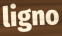
ligno